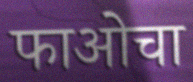
फाओचा